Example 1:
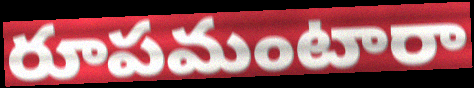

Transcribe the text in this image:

రూపమంటారా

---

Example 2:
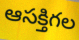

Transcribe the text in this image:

ఆసక్తిగల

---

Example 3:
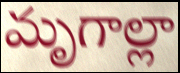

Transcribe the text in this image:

మృగాల్లా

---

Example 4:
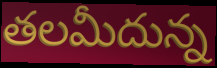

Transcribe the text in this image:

తలమీదున్న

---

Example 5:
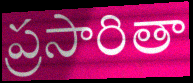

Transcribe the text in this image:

ప్రసారితా